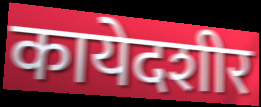
कायेदशीर